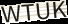
WTUK